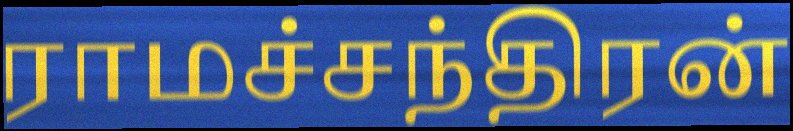
ராமச்சந்திரன்